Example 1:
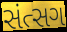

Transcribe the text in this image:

સંત્સગ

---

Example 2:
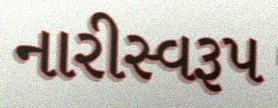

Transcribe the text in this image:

નારીસ્વરૂપ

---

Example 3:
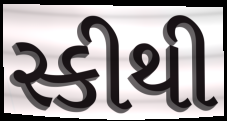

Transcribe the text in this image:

સ્કીથી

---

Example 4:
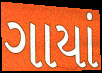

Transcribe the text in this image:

ગાયાં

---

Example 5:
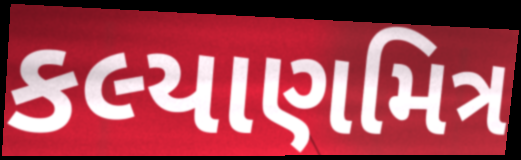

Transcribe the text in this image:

કલ્યાણમિત્ર